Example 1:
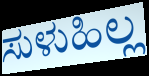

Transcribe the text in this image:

ಸುಳುಹಿಲ್ಲ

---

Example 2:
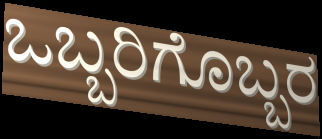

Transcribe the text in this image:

ಒಬ್ಬರಿಗೊಬ್ಬರ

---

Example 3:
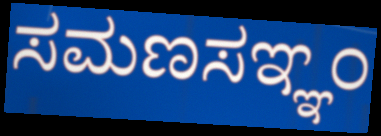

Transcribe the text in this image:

ಸಮಣಸಞ್ಞಂ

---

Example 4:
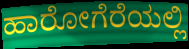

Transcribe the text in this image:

ಹಾರೋಗೆರೆಯಲ್ಲಿ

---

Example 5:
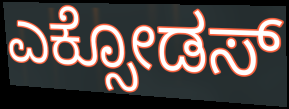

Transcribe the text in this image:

ಎಕ್ಸೋಡಸ್